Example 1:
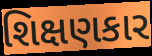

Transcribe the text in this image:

શિક્ષણકાર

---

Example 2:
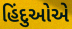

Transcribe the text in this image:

હિંદુઓએ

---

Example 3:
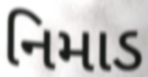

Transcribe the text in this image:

નિમાડ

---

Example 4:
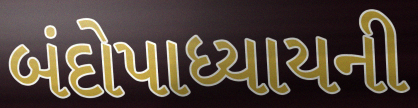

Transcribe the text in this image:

બંદોપાધ્યાયની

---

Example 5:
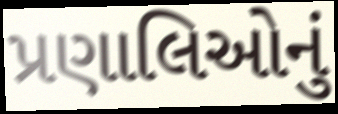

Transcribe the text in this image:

પ્રણાલિઓનું